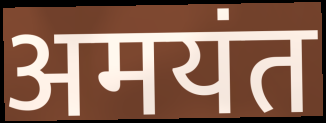
अमयंत